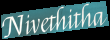
Nivethitha